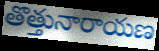
తొత్తునారాయణ